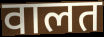
वालत